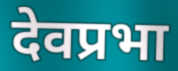
देवप्रभा